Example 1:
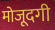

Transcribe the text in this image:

मोजूदगी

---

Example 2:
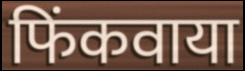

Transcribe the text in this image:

फिंकवाया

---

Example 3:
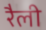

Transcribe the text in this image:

रैली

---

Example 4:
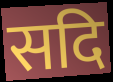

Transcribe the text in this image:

सदि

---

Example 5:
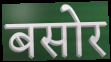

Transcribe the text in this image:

बसोर